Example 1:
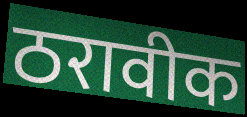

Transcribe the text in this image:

ठरावीक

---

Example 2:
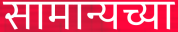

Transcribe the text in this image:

सामान्यच्या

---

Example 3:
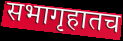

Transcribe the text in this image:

सभागृहातच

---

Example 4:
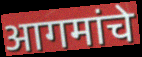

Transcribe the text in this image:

आगमांचे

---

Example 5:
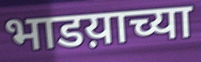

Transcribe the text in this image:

भाडय़ाच्या